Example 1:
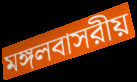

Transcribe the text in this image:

মঙ্গলবাসরীয়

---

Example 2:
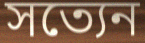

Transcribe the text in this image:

সত্যেন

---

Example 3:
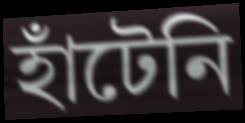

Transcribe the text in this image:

হাঁটেনি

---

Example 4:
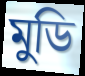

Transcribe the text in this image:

মুডি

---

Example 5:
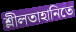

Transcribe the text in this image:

শ্লীলতাহানিতে